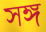
সঙ্গ